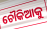
ଚୌକିଆକୁ